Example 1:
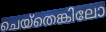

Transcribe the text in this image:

ചെയ്തെങ്കിലോ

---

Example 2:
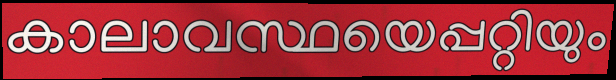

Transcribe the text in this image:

കാലാവസ്ഥയെപ്പറ്റിയും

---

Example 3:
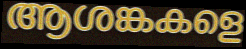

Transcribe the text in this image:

ആശങ്കകളെ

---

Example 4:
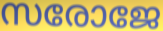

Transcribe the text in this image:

സരോജേ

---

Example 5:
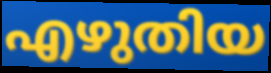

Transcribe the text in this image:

എഴുതിയ